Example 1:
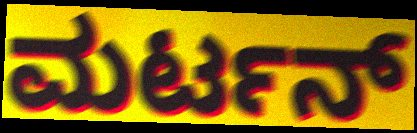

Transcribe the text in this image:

ಮರ್ಟನ್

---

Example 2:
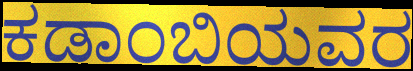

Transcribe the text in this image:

ಕಡಾಂಬಿಯವರ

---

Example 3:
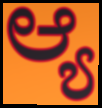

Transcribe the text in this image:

ಆ್ಯ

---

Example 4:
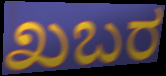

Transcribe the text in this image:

ಖಬರ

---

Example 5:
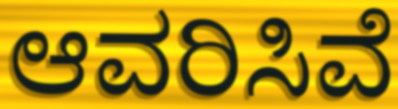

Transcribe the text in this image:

ಆವರಿಸಿವೆ